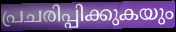
പ്രചരിപ്പിക്കുകയും